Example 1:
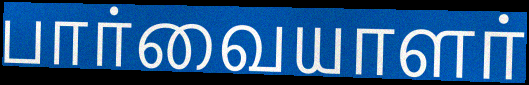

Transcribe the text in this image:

பார்வையாளர்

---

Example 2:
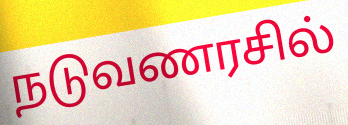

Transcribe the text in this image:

நடுவணரசில்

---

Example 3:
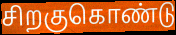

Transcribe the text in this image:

சிறகுகொண்டு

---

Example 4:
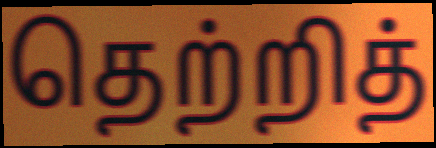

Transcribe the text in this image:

தெற்றித்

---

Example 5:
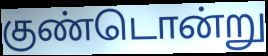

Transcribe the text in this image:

குண்டொன்று